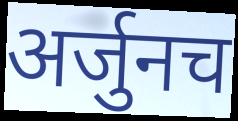
अर्जुनच